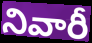
నివారీ